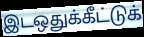
இடஒதுக்கீட்டுக்